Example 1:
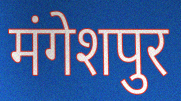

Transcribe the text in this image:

मंगेशपुर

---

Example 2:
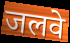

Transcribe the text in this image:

जलवे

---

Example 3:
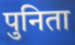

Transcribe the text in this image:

पुनिता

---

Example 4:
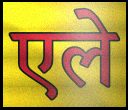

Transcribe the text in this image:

एले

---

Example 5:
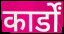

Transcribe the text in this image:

कार्डों